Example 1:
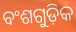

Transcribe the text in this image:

ବଂଶଗୁଡ଼ିକ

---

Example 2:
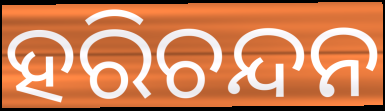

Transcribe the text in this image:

ହରିଚନ୍ଦନ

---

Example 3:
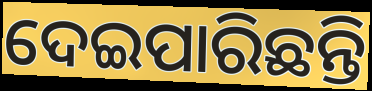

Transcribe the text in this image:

ଦେଇପାରିଛନ୍ତି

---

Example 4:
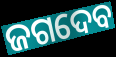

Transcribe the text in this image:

ଜଗଦେବ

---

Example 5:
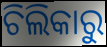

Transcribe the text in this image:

ଚିଲିକାରୁ